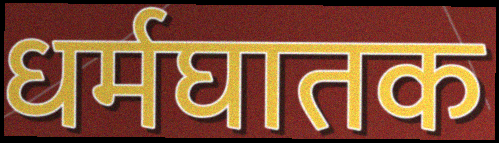
धर्मघातक